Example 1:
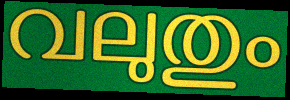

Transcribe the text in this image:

വലുതും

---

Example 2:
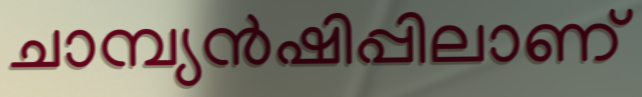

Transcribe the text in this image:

ചാമ്പ്യൻഷിപ്പിലാണ്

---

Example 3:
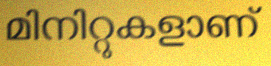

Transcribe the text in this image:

മിനിറ്റുകളാണ്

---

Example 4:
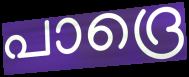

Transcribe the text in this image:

പാദ്രെ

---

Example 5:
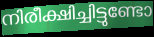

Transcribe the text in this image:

നിരീക്ഷിച്ചിട്ടുണ്ടോ